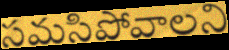
సమసిపోవాలని